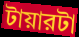
টায়ারটা